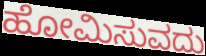
ಹೋಮಿಸುವದು